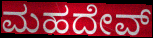
ಮಹದೇವ್